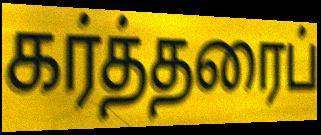
கர்த்தரைப்